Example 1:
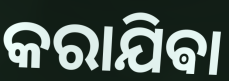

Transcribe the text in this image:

କରାଯିଵା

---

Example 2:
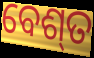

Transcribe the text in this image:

ବେଶ୍‍ତ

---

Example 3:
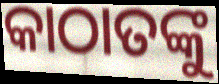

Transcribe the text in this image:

କାଠାତଙ୍କୁ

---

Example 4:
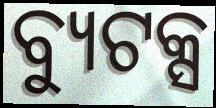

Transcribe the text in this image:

ବ୍ୟୁଟକ୍ସ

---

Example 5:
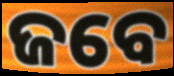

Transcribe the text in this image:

ଜବେ